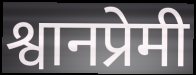
श्वानप्रेमी